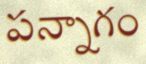
పన్నాగం